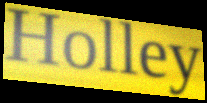
Holley